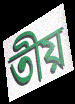
তীয়